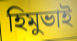
হিমুভাই